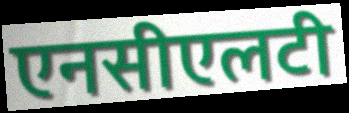
एनसीएलटी